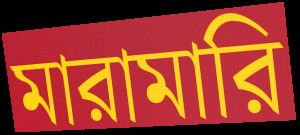
মারামারি